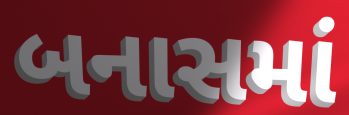
બનાસમાં